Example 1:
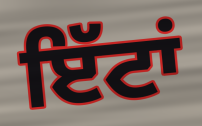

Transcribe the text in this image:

ਇੱਟਾਂ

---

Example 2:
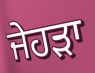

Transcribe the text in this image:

ਜੇਹੜਾ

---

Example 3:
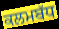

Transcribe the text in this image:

ਕਲਮਬੱਧ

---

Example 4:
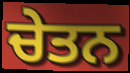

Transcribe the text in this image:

ਚੇਤਨ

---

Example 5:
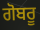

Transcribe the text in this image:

ਗੋਬਰੂ